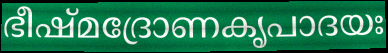
ഭീഷ്മദ്രോണകൃപാദയഃ